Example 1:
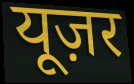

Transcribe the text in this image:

यूज़र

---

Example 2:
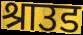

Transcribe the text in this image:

श्राउड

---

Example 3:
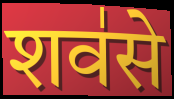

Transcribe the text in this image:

शव॑से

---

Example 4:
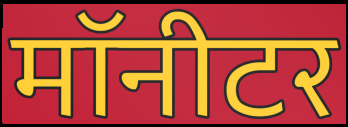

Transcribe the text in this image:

मॉनीटर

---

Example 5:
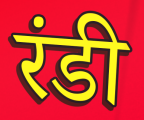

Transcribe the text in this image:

रंडी